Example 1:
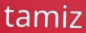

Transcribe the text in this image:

tamiz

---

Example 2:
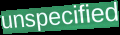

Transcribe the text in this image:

unspecified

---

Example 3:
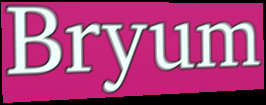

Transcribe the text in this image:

Bryum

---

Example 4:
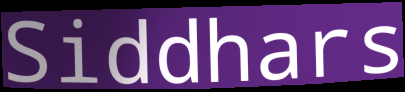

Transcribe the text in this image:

Siddhars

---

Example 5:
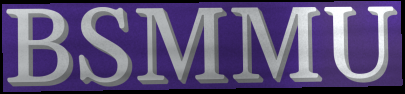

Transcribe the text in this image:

BSMMU